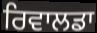
ਰਿਵਾਲਡਾ